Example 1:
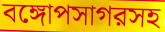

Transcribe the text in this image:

বঙ্গোপসাগরসহ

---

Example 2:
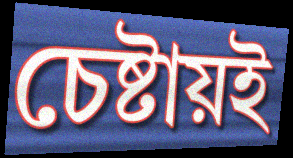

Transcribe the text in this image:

চেষ্টায়ই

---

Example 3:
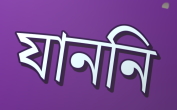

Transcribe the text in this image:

যাননি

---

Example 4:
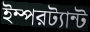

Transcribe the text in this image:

ইম্পরট্যান্ট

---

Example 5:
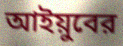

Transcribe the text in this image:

আইয়ুবের